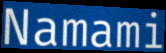
Namami